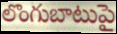
లొంగుబాటుపై